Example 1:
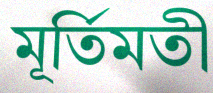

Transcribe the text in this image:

মূর্তিমতী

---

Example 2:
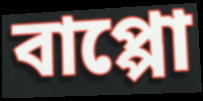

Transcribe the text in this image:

বাপ্পো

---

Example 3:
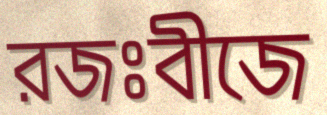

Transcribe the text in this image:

রজঃবীজে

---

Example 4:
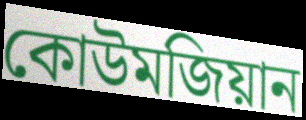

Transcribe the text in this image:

কোউমজিয়ান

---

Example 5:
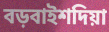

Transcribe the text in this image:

বড়বাইশদিয়া